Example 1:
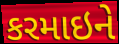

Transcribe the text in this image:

કરમાઇને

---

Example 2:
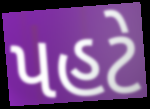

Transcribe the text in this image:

પહટે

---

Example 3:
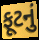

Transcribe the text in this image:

ફૂટનું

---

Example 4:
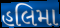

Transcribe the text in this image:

હલિમા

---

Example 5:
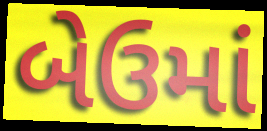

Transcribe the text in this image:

બેઉમાં